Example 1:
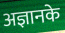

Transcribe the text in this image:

अज्ञानके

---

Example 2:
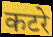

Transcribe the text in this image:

कटरे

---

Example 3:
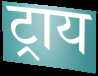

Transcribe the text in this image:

ट्राय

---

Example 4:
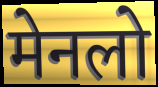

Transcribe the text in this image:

मेनलो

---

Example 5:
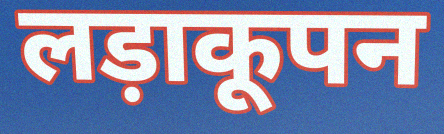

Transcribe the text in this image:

लड़ाकूपन